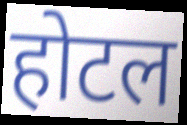
होटल